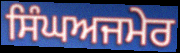
ਸਿੰਘਅਜਮੇਰ